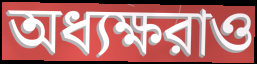
অধ্যক্ষরাও